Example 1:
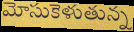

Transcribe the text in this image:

మోసుకెళుతున్న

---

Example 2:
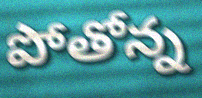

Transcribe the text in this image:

పోతోన్న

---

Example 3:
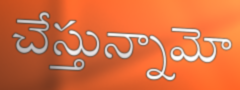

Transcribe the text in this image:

చేస్తున్నామో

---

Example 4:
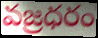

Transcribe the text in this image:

వజ్రధరం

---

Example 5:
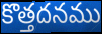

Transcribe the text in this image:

కొత్తదనము